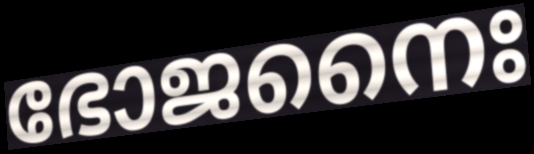
ഭോജനൈഃ